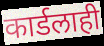
कार्डलाही